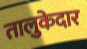
तालुकेदार